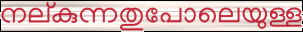
നല്കുന്നതുപോലെയുള്ള